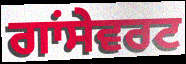
ਗਾਂਸੇਵਰਟ